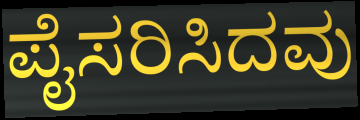
ಪೈಸರಿಸಿದವು